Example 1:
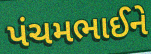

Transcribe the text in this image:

પંચમભાઈને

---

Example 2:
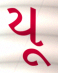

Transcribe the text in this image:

યૂ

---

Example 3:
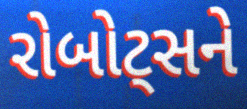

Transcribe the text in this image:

રોબોટ્સને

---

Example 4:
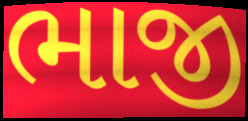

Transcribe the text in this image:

ભાજી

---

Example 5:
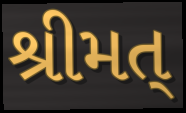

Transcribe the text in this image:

શ્રીમત્